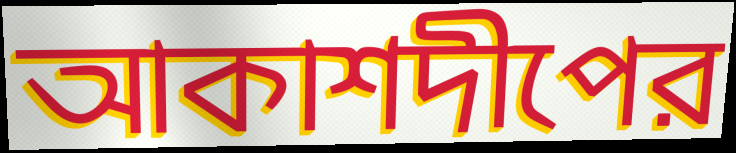
আকাশদীপের